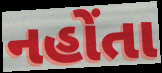
નહોંતા